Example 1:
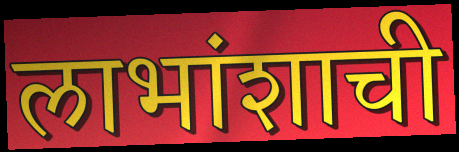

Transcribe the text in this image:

लाभांशाची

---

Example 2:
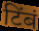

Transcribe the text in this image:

टिंबं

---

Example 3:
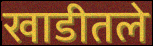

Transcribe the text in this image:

खाडीतले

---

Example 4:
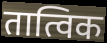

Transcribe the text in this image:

तात्विक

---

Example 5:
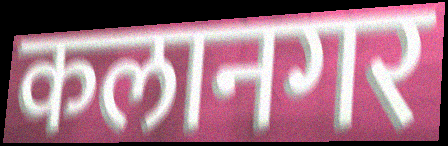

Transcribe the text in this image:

कलानगर